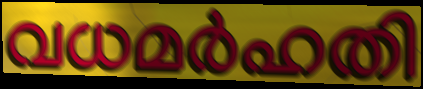
വധമർഹതി